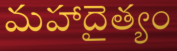
మహాదైత్యం